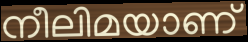
നീലിമയാണ്